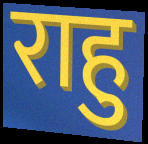
राहु